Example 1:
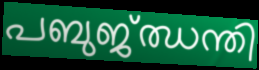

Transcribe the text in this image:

പബുജ്ഝന്തി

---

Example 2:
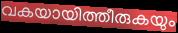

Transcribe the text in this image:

വകയായിത്തീരുകയും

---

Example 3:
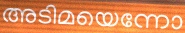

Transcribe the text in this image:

അടിമയെന്നോ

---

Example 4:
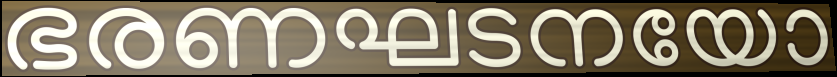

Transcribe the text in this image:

ഭരണഘടനയോ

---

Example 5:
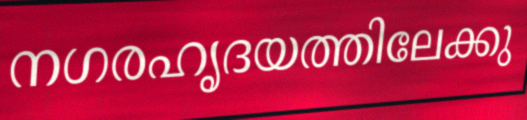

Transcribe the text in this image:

നഗരഹൃദയത്തിലേക്കു